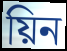
য়িন